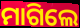
ମାଗିଲେ